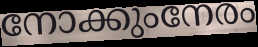
നോക്കുംനേരം